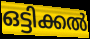
ഒട്ടിക്കൽ